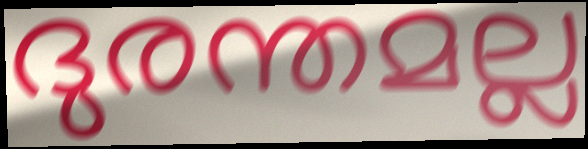
ദുരന്തമല്ല